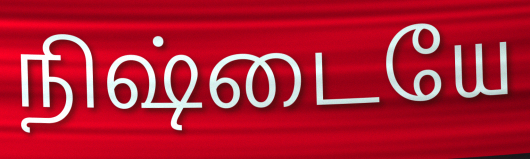
நிஷ்டையே